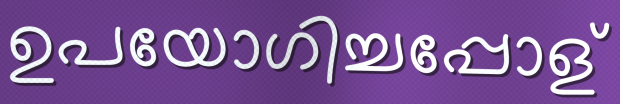
ഉപയോഗിച്ചപ്പോള്